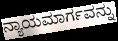
ನ್ಯಾಯಮಾರ್ಗವನ್ನು